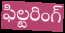
ఫిల్టరింగ్